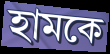
হামকে